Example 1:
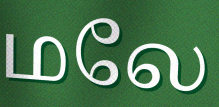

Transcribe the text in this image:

மலே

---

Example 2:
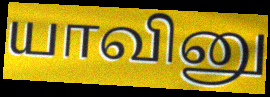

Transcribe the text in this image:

யாவினு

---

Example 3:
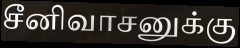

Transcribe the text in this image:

சீனிவாசனுக்கு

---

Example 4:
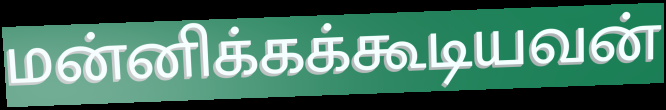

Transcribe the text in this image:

மன்னிக்கக்கூடியவன்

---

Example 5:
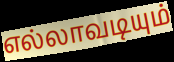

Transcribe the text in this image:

எல்லாவடியும்